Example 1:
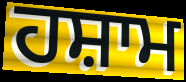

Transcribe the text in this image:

ਹਸ਼ਾਮ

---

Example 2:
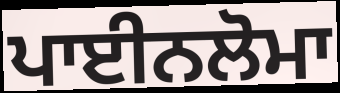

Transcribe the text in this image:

ਪਾਈਨਲੋਮਾ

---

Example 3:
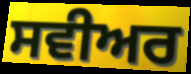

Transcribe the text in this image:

ਸਵੀਅਰ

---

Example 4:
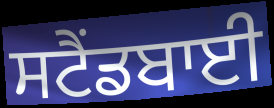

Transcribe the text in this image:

ਸਟੈਂਡਬਾਈ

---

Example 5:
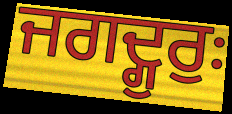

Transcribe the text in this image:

ਜਗਦ੍ਗੁਰੁਃ